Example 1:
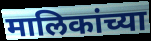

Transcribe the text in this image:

मालिकांच्या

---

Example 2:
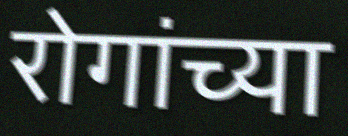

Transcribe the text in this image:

रोगांच्या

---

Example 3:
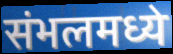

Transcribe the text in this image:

संभलमध्ये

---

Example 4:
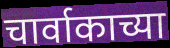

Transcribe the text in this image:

चार्वाकाच्या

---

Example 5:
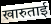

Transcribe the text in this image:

खारुताई